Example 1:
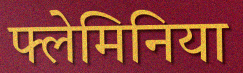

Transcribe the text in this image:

फ्लेमिनिया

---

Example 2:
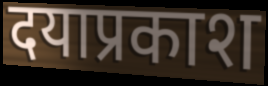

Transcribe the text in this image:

दयाप्रकाश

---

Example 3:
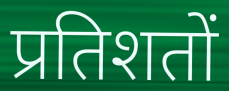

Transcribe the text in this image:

प्रतिशतों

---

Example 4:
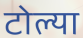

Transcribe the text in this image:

टोल्या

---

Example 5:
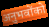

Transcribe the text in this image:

अनुभवोंको